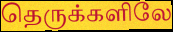
தெருக்களிலே